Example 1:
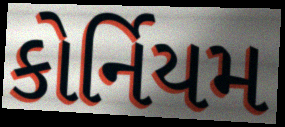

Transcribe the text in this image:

કોર્નિયમ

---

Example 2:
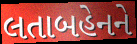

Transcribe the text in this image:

લતાબહેનને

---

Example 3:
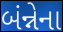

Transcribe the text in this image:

બંન્નેના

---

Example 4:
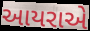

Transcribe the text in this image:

આયરાએ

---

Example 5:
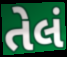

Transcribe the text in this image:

તેલં